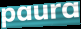
paura